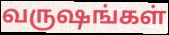
வருஷங்கள்